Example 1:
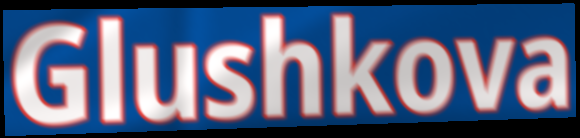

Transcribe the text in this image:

Glushkova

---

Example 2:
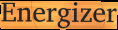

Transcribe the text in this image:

Energizer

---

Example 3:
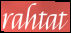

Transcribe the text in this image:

rahtat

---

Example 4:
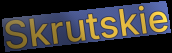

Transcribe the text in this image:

Skrutskie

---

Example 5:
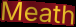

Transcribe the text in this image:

Meath